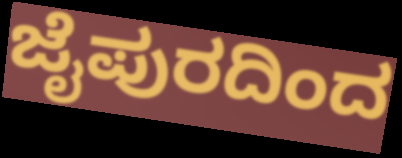
ಜೈಪುರದಿಂದ